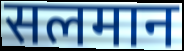
सलमान